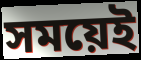
সময়েই